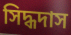
সিদ্ধদাস